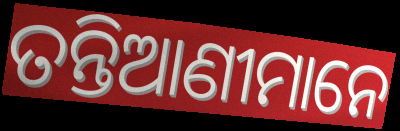
ତନ୍ତିଆଣୀମାନେ